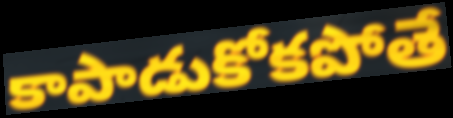
కాపాడుకోకపోతే